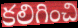
కలిగించి